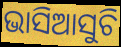
ଭାସିଆସୁଚି